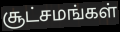
சூட்சமங்கள்